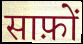
साफ़ों